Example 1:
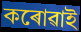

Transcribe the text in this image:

কৰোৱাই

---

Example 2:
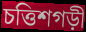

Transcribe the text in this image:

চত্তিশগড়ী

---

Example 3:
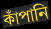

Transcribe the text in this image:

কাঁপানি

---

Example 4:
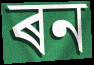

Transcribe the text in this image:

ৰন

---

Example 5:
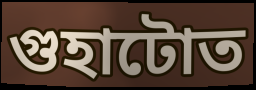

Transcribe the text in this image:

গুহাটোত